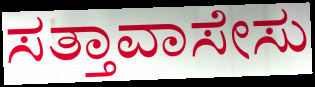
ಸತ್ತಾವಾಸೇಸು